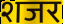
शजर